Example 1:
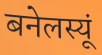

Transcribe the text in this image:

बनेलस्यूं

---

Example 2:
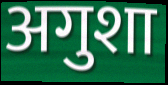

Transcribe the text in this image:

अगुशा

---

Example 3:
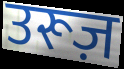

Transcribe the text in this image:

उरूज़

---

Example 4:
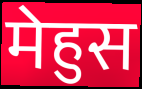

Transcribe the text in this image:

मेहुस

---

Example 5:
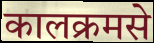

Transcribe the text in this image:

कालक्रमसे